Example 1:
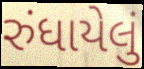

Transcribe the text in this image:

રુંધાયેલું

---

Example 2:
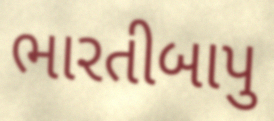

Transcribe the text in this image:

ભારતીબાપુ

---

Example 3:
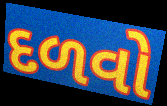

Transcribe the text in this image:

દળવો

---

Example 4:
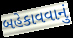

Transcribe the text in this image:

બહેકાવવાનું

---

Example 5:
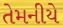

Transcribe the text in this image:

તેમનીયે